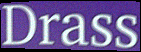
Drass